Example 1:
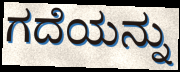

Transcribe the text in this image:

ಗದೆಯನ್ನು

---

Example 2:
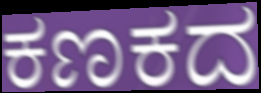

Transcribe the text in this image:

ಕಣಕದ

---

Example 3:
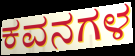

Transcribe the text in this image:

ಕವನಗಳ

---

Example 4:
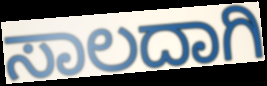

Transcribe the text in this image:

ಸಾಲದಾಗಿ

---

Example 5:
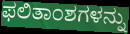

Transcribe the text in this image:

ಫಲಿತಾಂಶಗಳನ್ನು